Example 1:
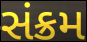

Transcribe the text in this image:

સંક્રમ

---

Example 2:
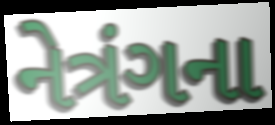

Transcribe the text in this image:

નેત્રંગના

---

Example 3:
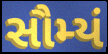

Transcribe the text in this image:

સૌમ્યં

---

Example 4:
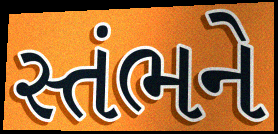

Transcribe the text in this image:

સ્તંભને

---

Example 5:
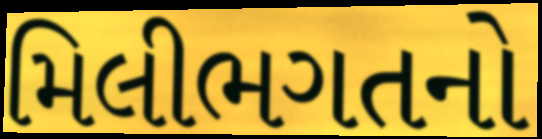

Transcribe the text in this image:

મિલીભગતનો